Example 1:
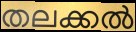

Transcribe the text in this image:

തലക്കൽ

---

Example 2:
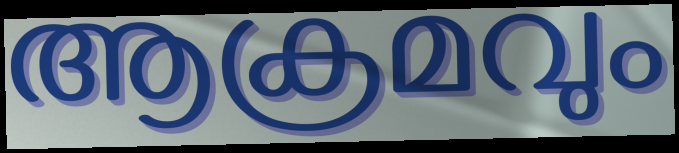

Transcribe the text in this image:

ആക്രമവും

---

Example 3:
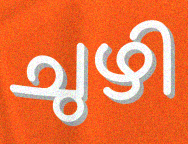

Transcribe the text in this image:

ചുഴി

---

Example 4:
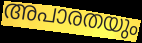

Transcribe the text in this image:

അപാരതയും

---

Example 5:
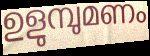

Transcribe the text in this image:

ഉളുമ്പുമണം